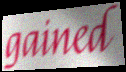
gained